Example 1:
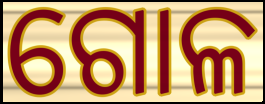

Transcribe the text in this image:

ଗୋଳ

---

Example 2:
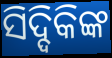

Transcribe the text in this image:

ସିଦ୍ଦିକିଙ୍କ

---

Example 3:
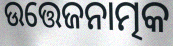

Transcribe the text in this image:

ଉତ୍ତେଜନାତ୍ମକ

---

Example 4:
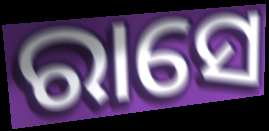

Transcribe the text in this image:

ରାସେ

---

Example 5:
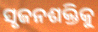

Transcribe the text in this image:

ସୃଜନଶକ୍ତିକୁ